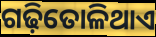
ଗଢ଼ିତୋଳିଥାଏ